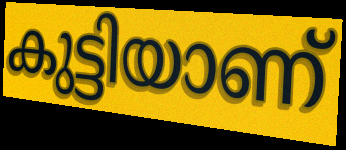
കുട്ടിയാണ്